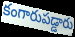
కంగారుపడ్డారు